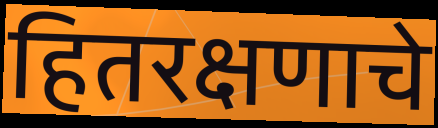
हितरक्षणाचे